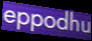
eppodhu